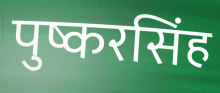
पुष्करसिंह